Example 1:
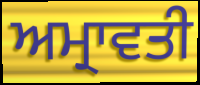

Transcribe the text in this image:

ਅਮ੍ਰਾਵਤੀ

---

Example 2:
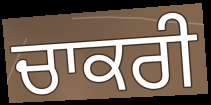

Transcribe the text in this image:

ਚਾਕਰੀ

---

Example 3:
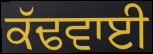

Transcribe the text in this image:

ਕੱਢਵਾਈ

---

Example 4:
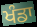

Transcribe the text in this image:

ਖੰਡਾ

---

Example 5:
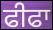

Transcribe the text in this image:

ਫੀਫਾ